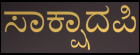
ಸಾಕ್ಷಾದಪಿ